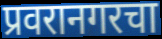
प्रवरानगरचा